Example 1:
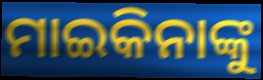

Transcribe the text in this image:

ମାଇକିନାଙ୍କୁ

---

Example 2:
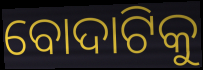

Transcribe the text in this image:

ବୋଦାଟିକୁ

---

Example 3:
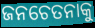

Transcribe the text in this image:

ଜନଚେତନାକୁ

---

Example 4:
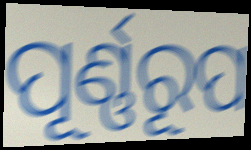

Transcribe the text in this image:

ପୂର୍ଣ୍ଣରୂପ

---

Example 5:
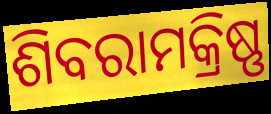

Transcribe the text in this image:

ଶିବରାମକ୍ରିଷ୍ଣ